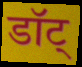
डॉट्